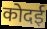
कोदई